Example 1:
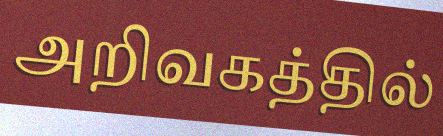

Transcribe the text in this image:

அறிவகத்தில்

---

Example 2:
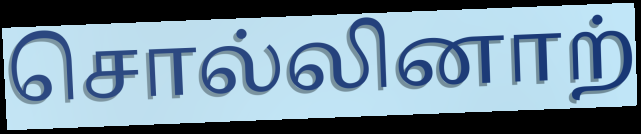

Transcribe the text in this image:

சொல்லினாற்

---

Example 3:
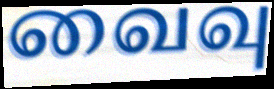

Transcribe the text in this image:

வைவு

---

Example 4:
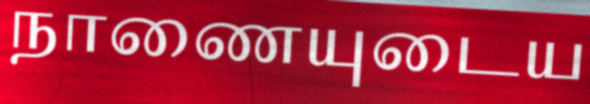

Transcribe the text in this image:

நாணையுடைய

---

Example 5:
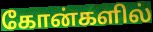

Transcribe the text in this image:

கோன்களில்